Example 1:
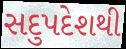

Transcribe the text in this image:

સદુપદેશથી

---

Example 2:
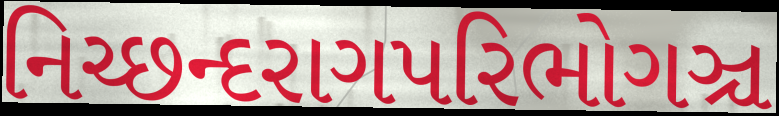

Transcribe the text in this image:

નિચ્છન્દરાગપરિભોગઞ્ચ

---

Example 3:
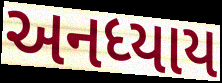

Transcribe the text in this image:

અનધ્યાય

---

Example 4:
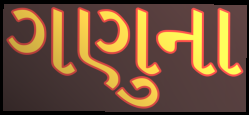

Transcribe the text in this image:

ગણુના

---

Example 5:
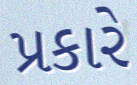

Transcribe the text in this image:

પ્રકારે